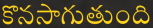
కొనసాగుతుంది